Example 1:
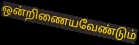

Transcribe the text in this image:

ஒன்றிணையவேண்டும்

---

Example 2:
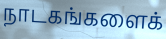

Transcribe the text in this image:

நாடகங்களைக்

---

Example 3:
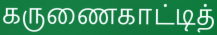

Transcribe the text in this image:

கருணைகாட்டித்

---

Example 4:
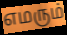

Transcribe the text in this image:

எமரும்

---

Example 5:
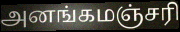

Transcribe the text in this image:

அனங்கமஞ்சரி